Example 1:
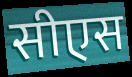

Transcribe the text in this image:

सीएस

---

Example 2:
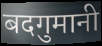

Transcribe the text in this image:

बदगुमानी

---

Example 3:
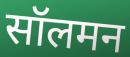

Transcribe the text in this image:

सॉलमन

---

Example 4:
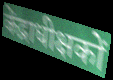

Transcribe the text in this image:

केंद्राधीक्षकों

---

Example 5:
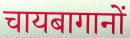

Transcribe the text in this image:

चायबागानों